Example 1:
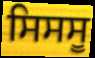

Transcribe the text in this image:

ਸਿਸਸੂ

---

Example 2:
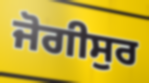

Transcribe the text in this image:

ਜੋਗੀਸੁਰ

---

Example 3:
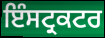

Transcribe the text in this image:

ਇੰਸਟ੍ਰਕਟਰ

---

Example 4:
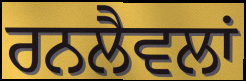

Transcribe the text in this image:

ਰਨਲੈਵਲਾਂ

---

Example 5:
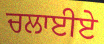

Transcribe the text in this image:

ਚਲਾਈਏ